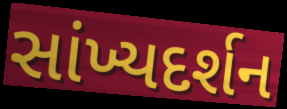
સાંખ્યદર્શન